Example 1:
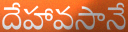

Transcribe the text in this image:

దేహావసానే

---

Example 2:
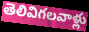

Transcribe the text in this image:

తెలివిగలవాళ్లు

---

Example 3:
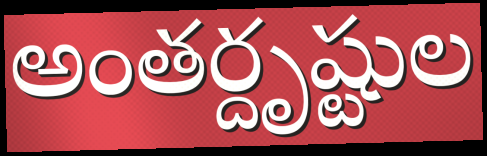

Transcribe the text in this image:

అంతర్దృష్టుల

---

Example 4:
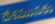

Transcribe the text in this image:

దేశమునకు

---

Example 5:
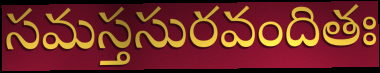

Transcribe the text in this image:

సమస్తసురవందితః